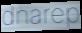
dnarep